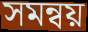
সমন্বয়